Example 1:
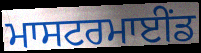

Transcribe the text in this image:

ਮਾਸਟਰਮਾਈੰਡ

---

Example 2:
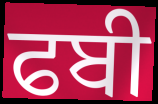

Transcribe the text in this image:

ਫਬੀ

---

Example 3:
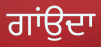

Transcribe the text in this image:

ਗਾਂਉਦਾ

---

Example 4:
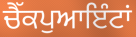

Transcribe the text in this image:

ਚੈੱਕਪੁਆਇੰਟਾਂ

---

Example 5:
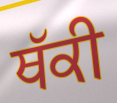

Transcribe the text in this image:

ਥੱਕੀ